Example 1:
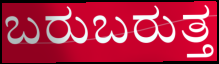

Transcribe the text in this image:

ಬರುಬರುತ್ತ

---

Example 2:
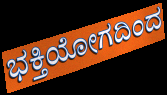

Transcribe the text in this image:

ಭಕ್ತಿಯೋಗದಿಂದ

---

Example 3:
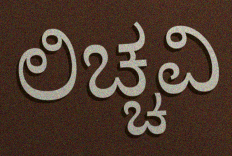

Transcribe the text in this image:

ಲಿಚ್ಚವಿ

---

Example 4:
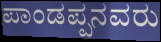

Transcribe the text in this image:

ಪಾಂಡಪ್ಪನವರು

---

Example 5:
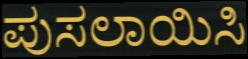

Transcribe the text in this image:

ಪುಸಲಾಯಿಸಿ